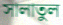
সালাতুল